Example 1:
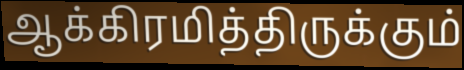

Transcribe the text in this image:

ஆக்கிரமித்திருக்கும்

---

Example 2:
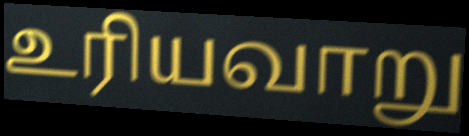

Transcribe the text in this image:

உரியவாறு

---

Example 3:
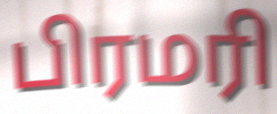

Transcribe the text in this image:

பிரமரி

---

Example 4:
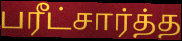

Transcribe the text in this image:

பரீட்சார்த்த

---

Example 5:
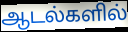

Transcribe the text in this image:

ஆடல்களில்